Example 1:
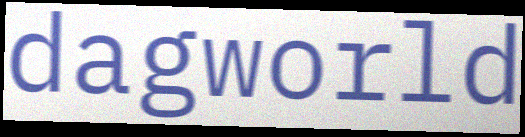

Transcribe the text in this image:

dagworld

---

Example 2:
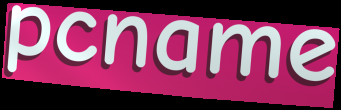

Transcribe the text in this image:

pcname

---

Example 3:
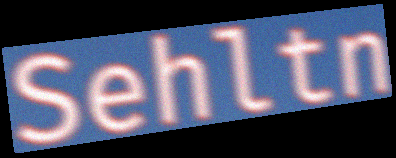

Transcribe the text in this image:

Sehltn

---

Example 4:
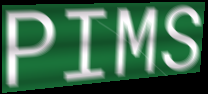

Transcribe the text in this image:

PIMS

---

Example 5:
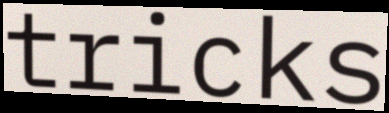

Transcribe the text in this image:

tricks